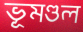
ভূমণ্ডল